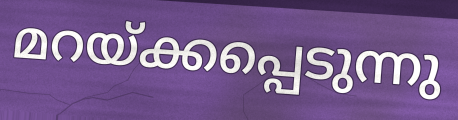
മറയ്ക്കപ്പെടുന്നു